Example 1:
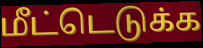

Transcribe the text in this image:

மீட்டெடுக்க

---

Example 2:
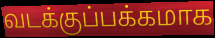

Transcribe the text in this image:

வடக்குப்பக்கமாக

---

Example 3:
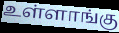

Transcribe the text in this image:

உள்ளாங்கு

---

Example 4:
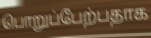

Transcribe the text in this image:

பொறுப்பேற்பதாக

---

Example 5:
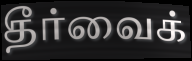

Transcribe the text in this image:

தீர்வைக்